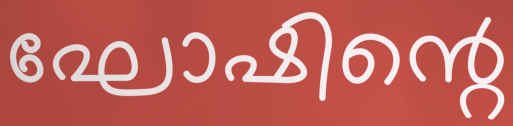
ഘോഷിന്റെ